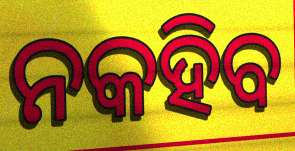
ନକହିବ